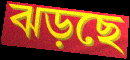
ঝড়ছে